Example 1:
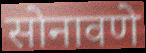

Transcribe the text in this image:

सोनावणे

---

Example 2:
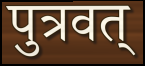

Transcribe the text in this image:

पुत्रवत्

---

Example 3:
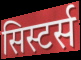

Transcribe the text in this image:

सिस्टर्स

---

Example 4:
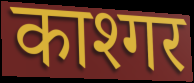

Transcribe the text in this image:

काश्गर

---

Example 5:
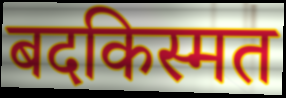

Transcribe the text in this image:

बदकिस्मत